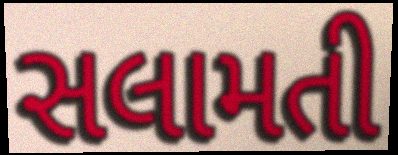
સલામતી